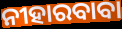
ନୀହାରବାବା